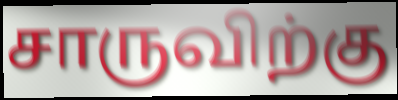
சாருவிற்கு